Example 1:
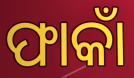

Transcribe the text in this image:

ଫାକାଁ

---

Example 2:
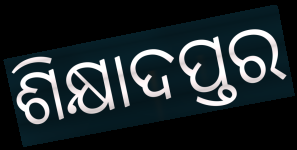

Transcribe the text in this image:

ଶିକ୍ଷାଦପ୍ତର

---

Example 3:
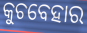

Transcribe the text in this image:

କୁଚବେହାର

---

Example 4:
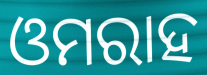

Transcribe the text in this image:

ଓମରାହ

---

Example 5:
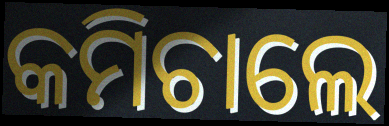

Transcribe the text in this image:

କମିଚାଲେ